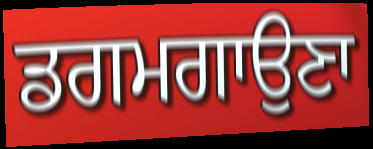
ਡਗਮਗਾਉਣਾ